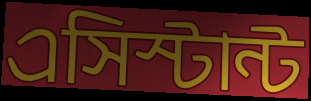
এসিস্টান্ট